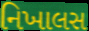
નિખાલસ